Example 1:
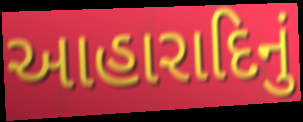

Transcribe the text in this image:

આહારાદિનું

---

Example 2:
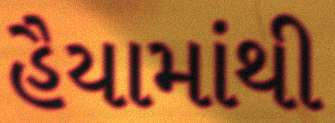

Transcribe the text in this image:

હૈયામાંથી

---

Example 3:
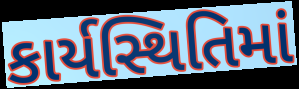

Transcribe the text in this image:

કાર્યસ્થિતિમાં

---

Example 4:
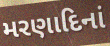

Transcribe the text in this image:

મરણાદિનાં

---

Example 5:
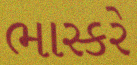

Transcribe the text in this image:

ભાસ્કરે